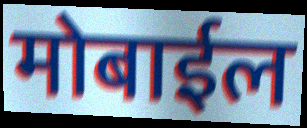
मोबाईल